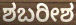
ಶಬರೀಶ